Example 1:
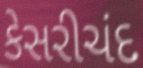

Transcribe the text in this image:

કેસરીચંદ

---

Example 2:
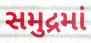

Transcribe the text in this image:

સમુદ્રમાં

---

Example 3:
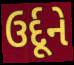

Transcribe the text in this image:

ઉર્દૂને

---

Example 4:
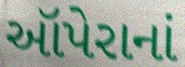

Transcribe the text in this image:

ઑપેરાનાં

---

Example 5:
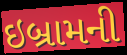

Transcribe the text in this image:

ઇબ્રામની